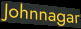
Johnnagar